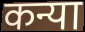
कन्या